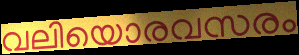
വലിയൊരവസരം